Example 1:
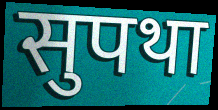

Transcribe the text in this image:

सुपथा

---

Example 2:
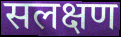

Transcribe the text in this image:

सलक्षण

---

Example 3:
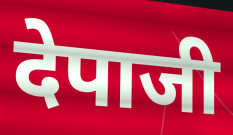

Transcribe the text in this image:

देपाजी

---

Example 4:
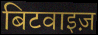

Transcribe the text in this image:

बिटवाइज़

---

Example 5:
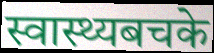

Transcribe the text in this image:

स्वास्थ्यबचके